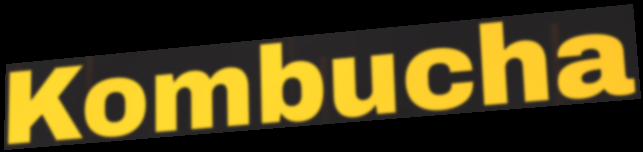
Kombucha